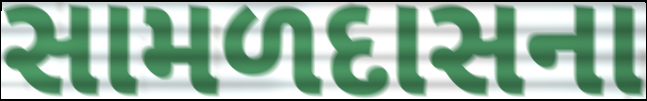
સામળદાસના